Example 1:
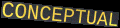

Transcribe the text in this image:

CONCEPTUAL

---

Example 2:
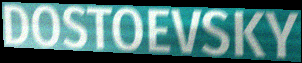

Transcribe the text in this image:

DOSTOEVSKY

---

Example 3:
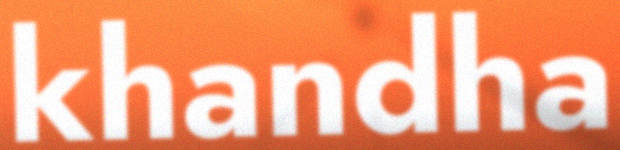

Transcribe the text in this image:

khandha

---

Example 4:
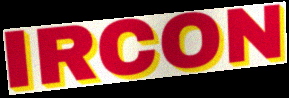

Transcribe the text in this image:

IRCON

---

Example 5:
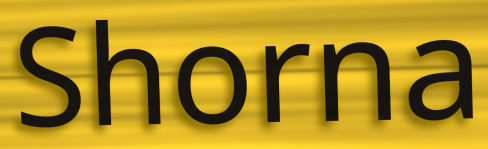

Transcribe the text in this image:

Shorna